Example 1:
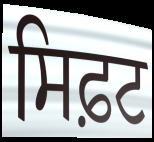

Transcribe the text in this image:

ਸਿਫ਼ਟ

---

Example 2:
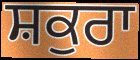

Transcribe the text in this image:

ਸ਼ਕੁਰਾ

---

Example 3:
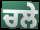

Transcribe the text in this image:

ਚਲੇ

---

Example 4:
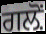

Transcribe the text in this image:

ਗਲ਼ੋਂ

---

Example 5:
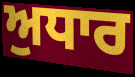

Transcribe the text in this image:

ਅੁਧਾਰ